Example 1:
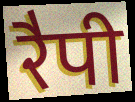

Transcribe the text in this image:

रैपी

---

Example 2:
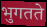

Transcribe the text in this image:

भुगतते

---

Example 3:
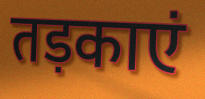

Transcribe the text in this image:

तड़काएं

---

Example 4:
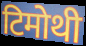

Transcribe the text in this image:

टिमोथी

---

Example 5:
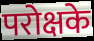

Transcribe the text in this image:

परोक्षके